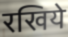
रखिये